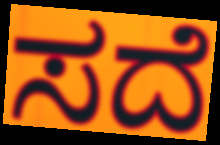
ಸದೆ